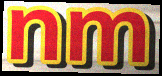
nm